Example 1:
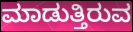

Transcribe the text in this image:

ಮಾಡುತ್ತಿರುವ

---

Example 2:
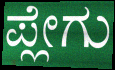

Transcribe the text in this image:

ಪ್ಲೇಗು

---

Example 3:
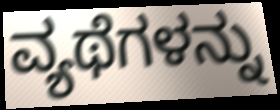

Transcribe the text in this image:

ವ್ಯಥೆಗಳನ್ನು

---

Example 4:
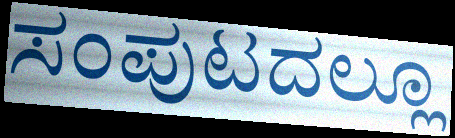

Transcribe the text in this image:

ಸಂಪುಟದಲ್ಲೂ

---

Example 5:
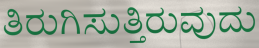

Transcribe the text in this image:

ತಿರುಗಿಸುತ್ತಿರುವುದು